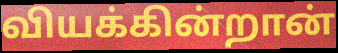
வியக்கின்றான்